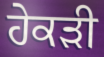
ਹੇਕੜੀ